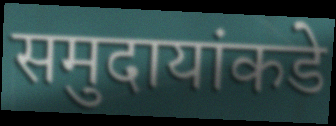
समुदायांकडे